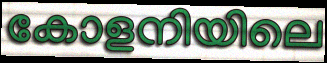
കോളനിയിലെ